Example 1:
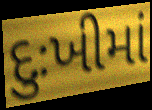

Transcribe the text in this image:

દુઃખીમાં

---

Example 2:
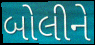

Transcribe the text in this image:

બોલીને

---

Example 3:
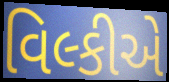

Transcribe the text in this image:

વિલ્કીએ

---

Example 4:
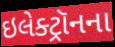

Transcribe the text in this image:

ઇલેક્ટ્રૉનના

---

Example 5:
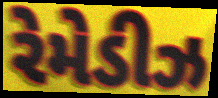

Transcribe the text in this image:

રેમેડીઝ